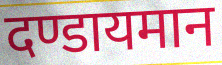
दण्डायमान